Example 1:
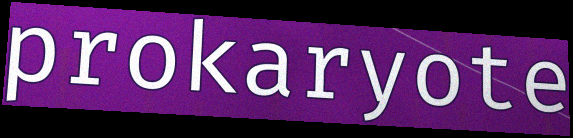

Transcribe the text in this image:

prokaryote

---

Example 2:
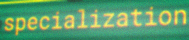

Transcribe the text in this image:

specialization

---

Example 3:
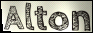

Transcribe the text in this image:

Alton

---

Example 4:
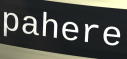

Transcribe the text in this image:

pahere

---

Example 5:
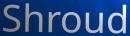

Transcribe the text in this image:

Shroud